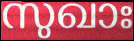
സുഖാഃ